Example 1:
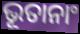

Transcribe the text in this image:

ଭୂତାନାଂ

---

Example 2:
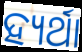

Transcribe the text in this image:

ହ୍ୟର୍ଥା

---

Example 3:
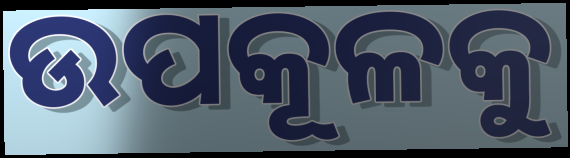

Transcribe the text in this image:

ଉପକୂଳକୁ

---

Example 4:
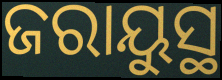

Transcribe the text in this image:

ଜରାୟୁସ୍ଥ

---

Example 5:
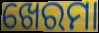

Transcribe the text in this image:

ଖେରମା